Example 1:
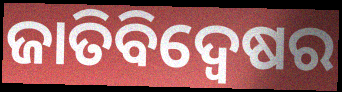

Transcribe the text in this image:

ଜାତିବିଦ୍ୱେଷର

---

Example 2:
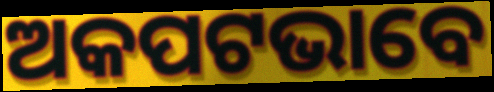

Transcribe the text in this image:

ଅକପଟଭାବେ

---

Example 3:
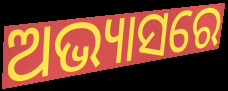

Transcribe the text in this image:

ଅଭ୍ୟାସରେ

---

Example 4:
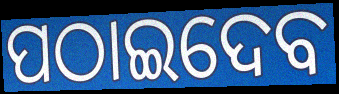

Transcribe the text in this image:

ପଠାଇଦେବ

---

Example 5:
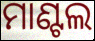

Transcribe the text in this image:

ମାଣ୍ଟଲ